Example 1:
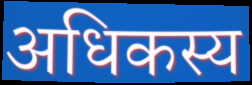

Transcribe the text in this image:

अधिकस्य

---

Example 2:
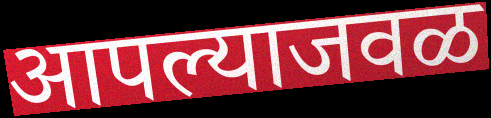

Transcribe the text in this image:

आपल्याजवळ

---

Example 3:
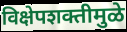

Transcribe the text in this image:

विक्षेपशक्तीमुळे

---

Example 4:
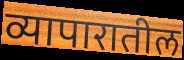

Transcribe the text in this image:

व्यापारातील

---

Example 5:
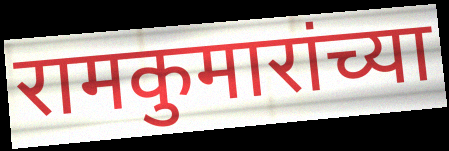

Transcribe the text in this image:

रामकुमारांच्या